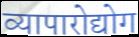
व्यापारोद्योग